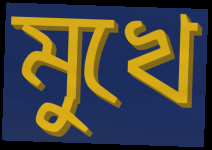
মুখে